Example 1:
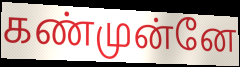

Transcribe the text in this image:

கண்முன்னே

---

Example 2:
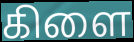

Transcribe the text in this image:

கிளை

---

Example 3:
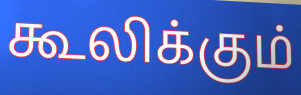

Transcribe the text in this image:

கூலிக்கும்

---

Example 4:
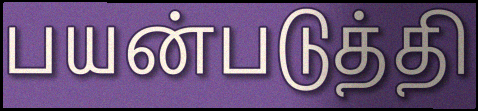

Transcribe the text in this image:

பயன்படுத்தி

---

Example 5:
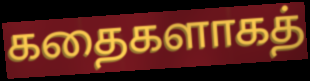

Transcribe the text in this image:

கதைகளாகத்